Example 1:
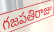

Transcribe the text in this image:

గజపతిరాజు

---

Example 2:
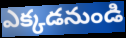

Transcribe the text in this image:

ఎక్కడనుండి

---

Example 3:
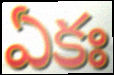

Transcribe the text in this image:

ఏకః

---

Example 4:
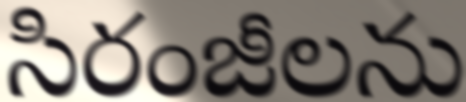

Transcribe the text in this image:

సిరంజీలను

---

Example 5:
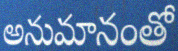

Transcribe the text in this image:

అనుమానంతో